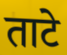
ताटे